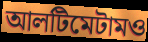
আলটিমেটামও